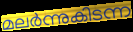
മലർന്നുകിടന്ന